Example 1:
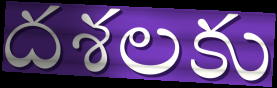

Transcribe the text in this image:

దశలకు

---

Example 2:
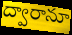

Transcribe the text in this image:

ద్వారానూ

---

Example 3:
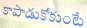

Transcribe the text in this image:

కాపాడుకోకుంటే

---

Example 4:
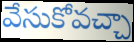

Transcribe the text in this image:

వేసుకోవచ్చా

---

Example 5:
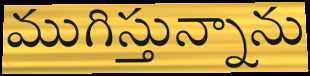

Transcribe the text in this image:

ముగిస్తున్నాను